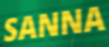
SANNA